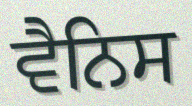
ਵੈਨਿਸ